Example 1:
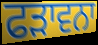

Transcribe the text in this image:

ਫੜਾਵਨਾ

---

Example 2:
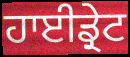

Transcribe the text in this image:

ਹਾਈਡ੍ਰੇਟ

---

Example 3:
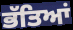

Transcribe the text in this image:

ਭੱਤਿਆਂ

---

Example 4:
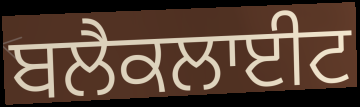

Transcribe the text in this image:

ਬਲੈਕਲਾਈਟ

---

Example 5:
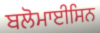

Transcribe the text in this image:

ਬਲੋਮਾਈਸਿਨ